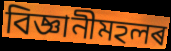
বিজ্ঞানীমহলৰ